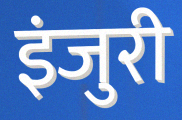
इंजुरी